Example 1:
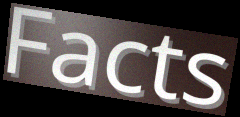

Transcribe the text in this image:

Facts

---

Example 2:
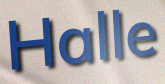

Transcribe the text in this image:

Halle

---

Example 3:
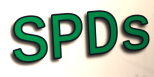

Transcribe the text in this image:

SPDs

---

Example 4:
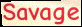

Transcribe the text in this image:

Savage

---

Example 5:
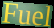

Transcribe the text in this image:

Fuel